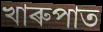
খাৰুপাত